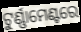
ଟୁର୍ଣ୍ଣାମେଣ୍ଟରେ